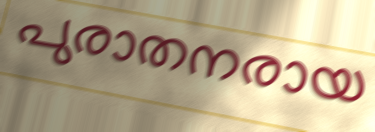
പുരാതനരായ